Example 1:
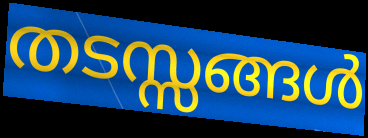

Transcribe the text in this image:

തടസ്സങ്ങൾ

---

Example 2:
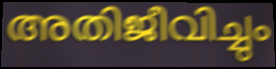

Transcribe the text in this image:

അതിജീവിച്ചും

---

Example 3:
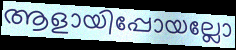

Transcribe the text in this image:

ആളായിപ്പോയല്ലോ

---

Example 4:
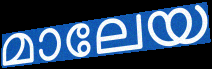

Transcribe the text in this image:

മാലേയ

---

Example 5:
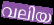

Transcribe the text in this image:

വലിയ